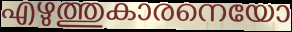
എഴുത്തുകാരനെയോ